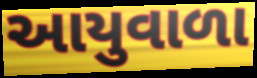
આયુવાળા